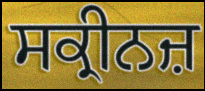
ਸਕ੍ਰੀਨਜ਼